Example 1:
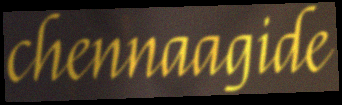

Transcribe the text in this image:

chennaagide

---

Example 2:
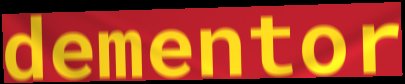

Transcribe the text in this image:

dementor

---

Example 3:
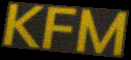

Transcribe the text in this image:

KFM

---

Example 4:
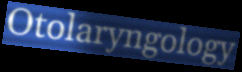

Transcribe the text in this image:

Otolaryngology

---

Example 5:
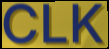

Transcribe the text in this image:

CLK